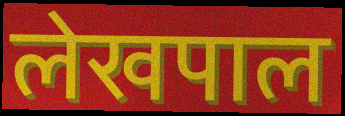
लेखपाल